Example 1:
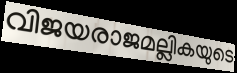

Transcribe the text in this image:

വിജയരാജമല്ലികയുടെ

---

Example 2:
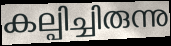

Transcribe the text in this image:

കല്പിച്ചിരുന്നു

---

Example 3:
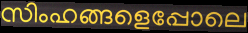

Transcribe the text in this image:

സിംഹങ്ങളെപ്പോലെ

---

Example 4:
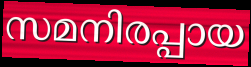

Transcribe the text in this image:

സമനിരപ്പായ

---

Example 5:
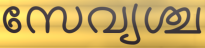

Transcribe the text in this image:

സേവ്യശ്ച